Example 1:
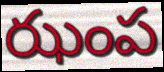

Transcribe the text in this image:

ఝంప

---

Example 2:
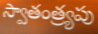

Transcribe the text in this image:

స్వాతంత్ర్యపు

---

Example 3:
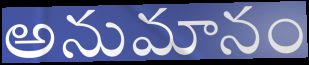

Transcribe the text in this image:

అనుమానం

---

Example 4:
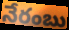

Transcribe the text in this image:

నేరంబు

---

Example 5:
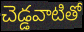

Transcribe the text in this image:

చెడ్డవాటితో